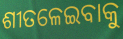
ଶୀତଳେଇବାକୁ